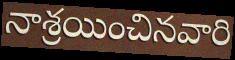
నాశ్రయించినవారి